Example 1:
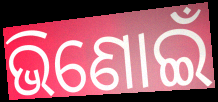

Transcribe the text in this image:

ଭିଣୋଇଁ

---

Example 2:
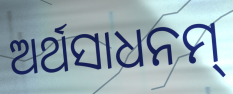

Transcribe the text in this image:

ଅର୍ଥସାଧନମ୍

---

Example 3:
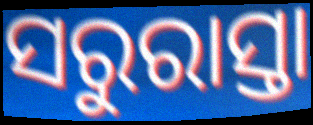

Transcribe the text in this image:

ସରୁରାସ୍ତା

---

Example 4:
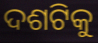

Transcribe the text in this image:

ଦଶଟିକୁ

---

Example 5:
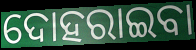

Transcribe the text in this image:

ଦୋହରାଇବା